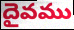
దైవము